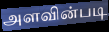
அளவின்படி